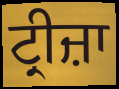
ਟ੍ਰੀਜ਼ਾ